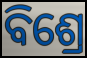
ବିଶ୍ରେ